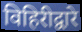
विहिरीद्वारे